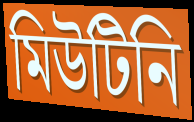
মিউটিনি